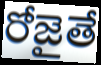
రోజైతే